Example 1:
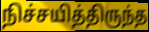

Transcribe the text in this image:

நிச்சயித்திருந்த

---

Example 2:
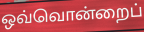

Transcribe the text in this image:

ஒவ்வொன்றைப்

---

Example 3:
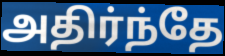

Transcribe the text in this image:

அதிர்ந்தே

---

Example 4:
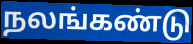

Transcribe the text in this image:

நலங்கண்டு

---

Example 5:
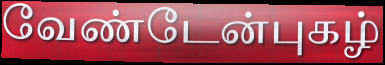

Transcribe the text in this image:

வேண்டேன்புகழ்